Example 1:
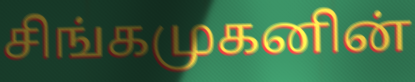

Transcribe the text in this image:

சிங்கமுகனின்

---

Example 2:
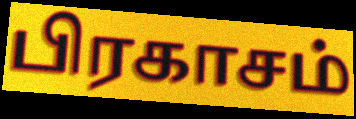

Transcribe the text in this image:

பிரகாசம்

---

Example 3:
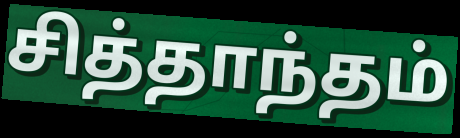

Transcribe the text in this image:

சித்தாந்தம்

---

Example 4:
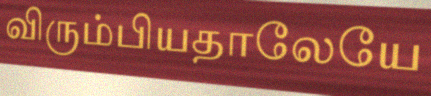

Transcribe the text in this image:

விரும்பியதாலேயே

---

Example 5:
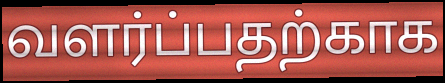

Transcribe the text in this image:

வளர்ப்பதற்காக